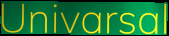
Univarsal